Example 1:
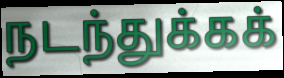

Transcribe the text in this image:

நடந்துக்கக்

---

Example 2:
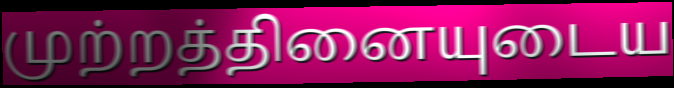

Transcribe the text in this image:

முற்றத்தினையுடைய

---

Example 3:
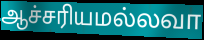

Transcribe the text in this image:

ஆச்சரியமல்லவா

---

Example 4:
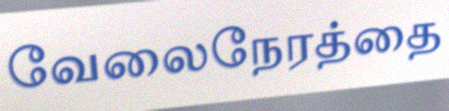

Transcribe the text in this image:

வேலைநேரத்தை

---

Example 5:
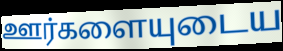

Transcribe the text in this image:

ஊர்களையுடைய